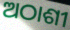
ଅଠାଶୀ